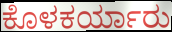
ಕೊಳಕರ್ಯಾರು